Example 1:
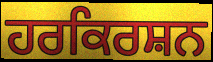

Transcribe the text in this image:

ਹਰਕਿਰਸ਼ਨ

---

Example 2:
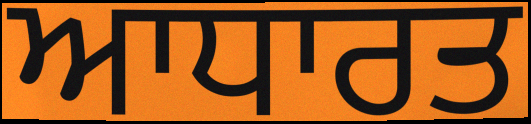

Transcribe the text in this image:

ਆਧਾਰਤ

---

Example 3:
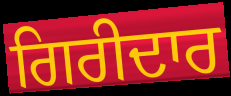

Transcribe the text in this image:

ਗਿਰੀਦਾਰ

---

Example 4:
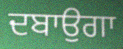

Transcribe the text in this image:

ਦਬਾਉਗਾ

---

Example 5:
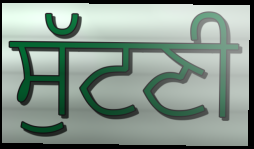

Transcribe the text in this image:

ਸੁੱਟਣੀ